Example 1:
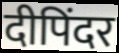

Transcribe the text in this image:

दीपिंदर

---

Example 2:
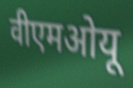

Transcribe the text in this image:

वीएमओयू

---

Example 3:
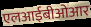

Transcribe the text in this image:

एलआईबीओआर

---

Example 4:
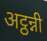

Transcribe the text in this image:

अट्ठन्नी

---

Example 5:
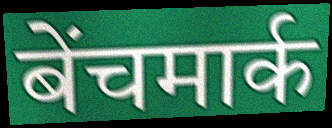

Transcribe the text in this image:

बेंचमार्क